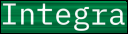
Integra